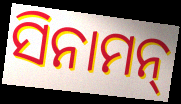
ସିନାମନ୍